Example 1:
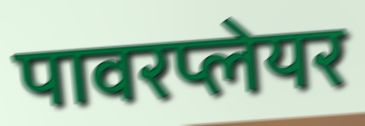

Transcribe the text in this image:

पावरप्लेयर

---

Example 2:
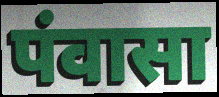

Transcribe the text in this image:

पंवासा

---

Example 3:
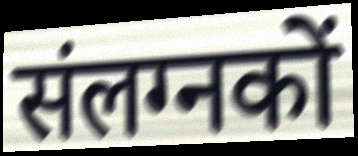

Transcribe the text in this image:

संलग्नकों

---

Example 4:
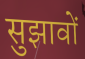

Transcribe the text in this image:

सुझावों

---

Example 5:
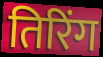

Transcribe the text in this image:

तिरिंग